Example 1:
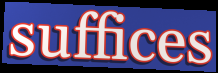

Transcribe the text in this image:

suffices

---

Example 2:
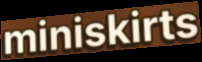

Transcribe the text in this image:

miniskirts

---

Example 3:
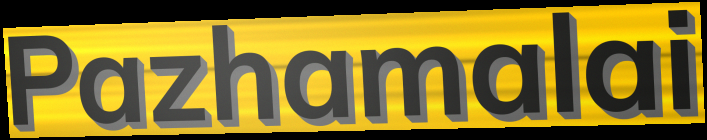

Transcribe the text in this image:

Pazhamalai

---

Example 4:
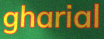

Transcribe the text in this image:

gharial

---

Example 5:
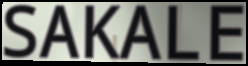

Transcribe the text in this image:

SAKALE